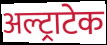
अल्‍ट्राटेक